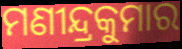
ମଣୀନ୍ଦ୍ରକୁମାର